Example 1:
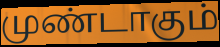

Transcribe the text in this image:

முண்டாகும்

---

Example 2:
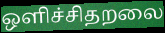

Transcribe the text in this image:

ஒளிச்சிதறலை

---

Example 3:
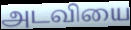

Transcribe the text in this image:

அடவியை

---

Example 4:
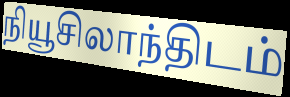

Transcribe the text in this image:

நியூசிலாந்திடம்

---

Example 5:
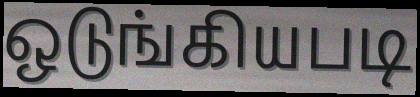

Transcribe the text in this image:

ஒடுங்கியபடி